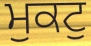
ਮੁਕਟੁ